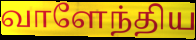
வாளேந்திய